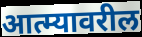
आत्म्यावरील